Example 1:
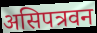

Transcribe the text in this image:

असिपत्रवन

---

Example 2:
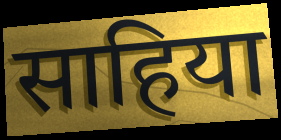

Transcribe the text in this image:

साहिया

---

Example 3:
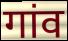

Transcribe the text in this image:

गांव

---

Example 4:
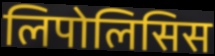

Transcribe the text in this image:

लिपोलिसिस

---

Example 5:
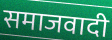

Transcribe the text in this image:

समाजवादी